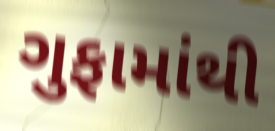
ગુફામાંથી